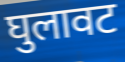
घुलावट